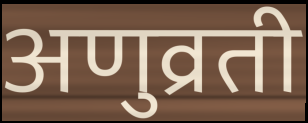
अणुव्रती